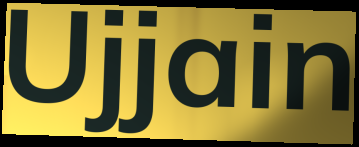
Ujjain